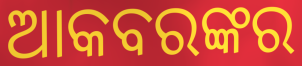
ଆକବରଙ୍କର